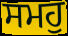
ਸਮਹੁ